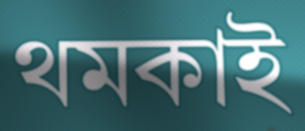
থমকাই